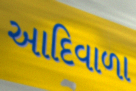
આદિવાળા